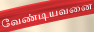
வேண்டியவனை